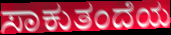
ಸಾಕುತಂದೆಯ